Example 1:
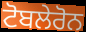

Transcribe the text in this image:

ਟੋਬਲੇਰੋਨ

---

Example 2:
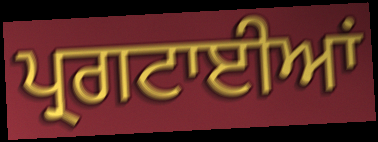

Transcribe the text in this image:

ਪ੍ਰਗਟਾਈਆਂ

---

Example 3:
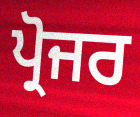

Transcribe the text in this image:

ਪ੍ਰੋਜਰ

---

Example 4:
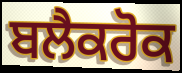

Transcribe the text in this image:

ਬਲੈਕਰੋਕ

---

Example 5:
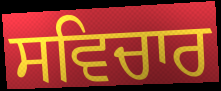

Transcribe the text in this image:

ਸਵਿਚਾਰ